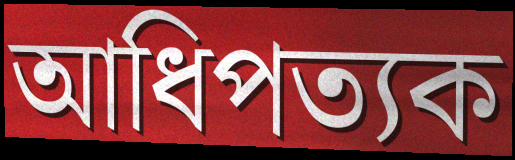
আধিপত্যক